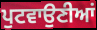
ਪੁਟਵਾਉਣੀਆਂ